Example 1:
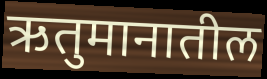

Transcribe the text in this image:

ऋतुमानातील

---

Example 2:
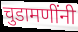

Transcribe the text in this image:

चुडामणींनी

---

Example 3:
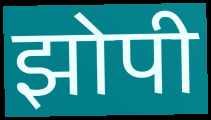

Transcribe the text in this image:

झोपी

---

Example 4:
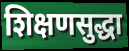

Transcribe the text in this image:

शिक्षणसुद्धा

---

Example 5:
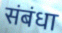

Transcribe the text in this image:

संबंधा